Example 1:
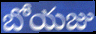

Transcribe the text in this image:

బోయజు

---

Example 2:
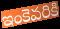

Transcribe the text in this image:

ఇంకెవరికి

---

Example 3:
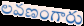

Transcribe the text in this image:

లవణంగారు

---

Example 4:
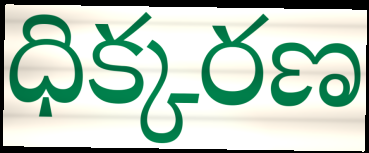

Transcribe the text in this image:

ధిక్కరణ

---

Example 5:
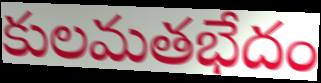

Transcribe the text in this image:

కులమతభేదం